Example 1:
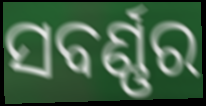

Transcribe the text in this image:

ସବର୍ଣ୍ଣର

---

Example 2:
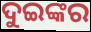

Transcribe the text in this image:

ଦୁଇଙ୍କର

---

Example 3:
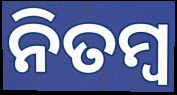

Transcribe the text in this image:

ନିତମ୍ବ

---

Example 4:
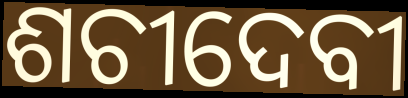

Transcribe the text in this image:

ଶଚୀଦେବୀ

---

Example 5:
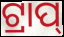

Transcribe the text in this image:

ଟ୍ରାପ୍